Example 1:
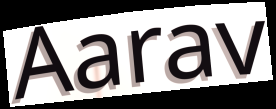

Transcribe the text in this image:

Aarav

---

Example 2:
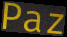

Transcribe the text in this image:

Paz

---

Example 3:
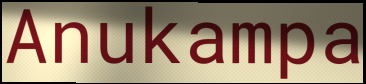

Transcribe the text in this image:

Anukampa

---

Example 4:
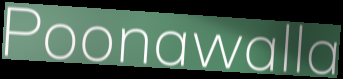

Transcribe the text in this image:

Poonawalla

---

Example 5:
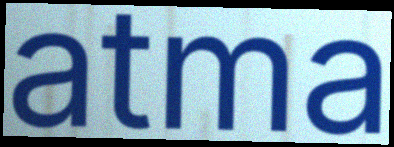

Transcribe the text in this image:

atma